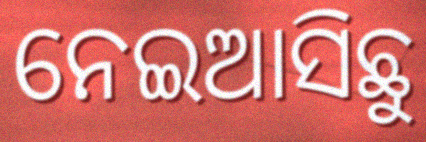
ନେଇଆସିଛୁ